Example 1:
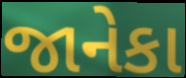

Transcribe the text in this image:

જાનેકા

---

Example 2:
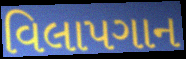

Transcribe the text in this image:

વિલાપગાન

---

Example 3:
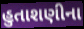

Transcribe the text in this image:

હુતાશણીના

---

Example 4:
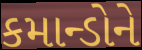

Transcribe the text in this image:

કમાન્ડોને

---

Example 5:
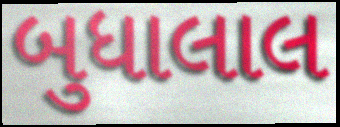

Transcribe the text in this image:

બુધાલાલ